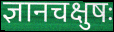
ज्ञानचक्षुषः